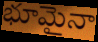
భూమైనా